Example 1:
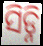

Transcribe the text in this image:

ସିଡ୍ନି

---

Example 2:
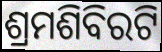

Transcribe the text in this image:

ଶ୍ରମଶିବିରଟି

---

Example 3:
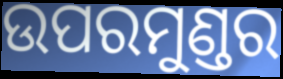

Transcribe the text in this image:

ଉପରମୁଣ୍ଡର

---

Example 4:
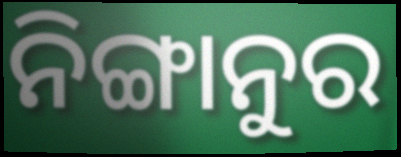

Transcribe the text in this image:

ନିଙ୍ଗାନୁର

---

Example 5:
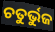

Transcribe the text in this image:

ଚତୁର୍ଭୁଜ